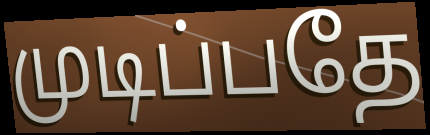
முடிப்பதே